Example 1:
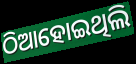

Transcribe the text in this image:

ଠିଆହୋଇଥିଲି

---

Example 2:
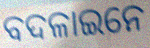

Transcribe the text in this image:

ବଦଳାଇନେ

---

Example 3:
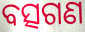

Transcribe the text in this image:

ବତ୍ସଗଣ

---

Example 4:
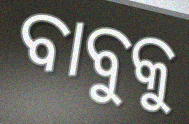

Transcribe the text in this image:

ବାବୁକୁ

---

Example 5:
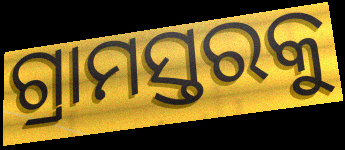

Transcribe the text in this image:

ଗ୍ରାମସ୍ତରକୁ